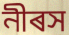
নীৰস